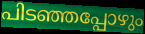
പിടഞ്ഞപ്പോഴും